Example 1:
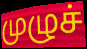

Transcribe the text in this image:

முழுச்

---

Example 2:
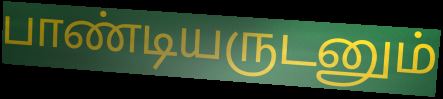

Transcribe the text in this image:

பாண்டியருடனும்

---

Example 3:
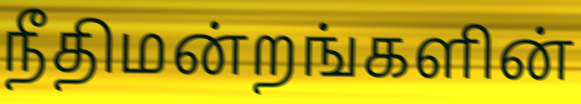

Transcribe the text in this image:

நீதிமன்றங்களின்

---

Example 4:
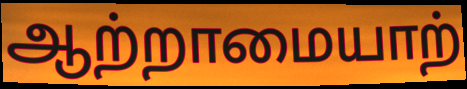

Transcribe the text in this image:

ஆற்றாமையாற்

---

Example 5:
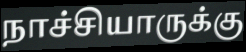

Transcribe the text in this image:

நாச்சியாருக்கு